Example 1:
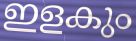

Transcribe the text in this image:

ഇളകും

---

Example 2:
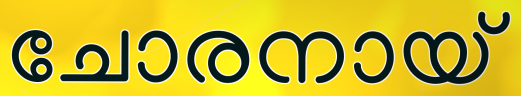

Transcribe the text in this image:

ചോരനായ്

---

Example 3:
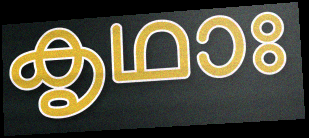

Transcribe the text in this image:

കൃഥാഃ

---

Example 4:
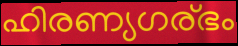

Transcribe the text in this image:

ഹിരണ്യഗര്ഭം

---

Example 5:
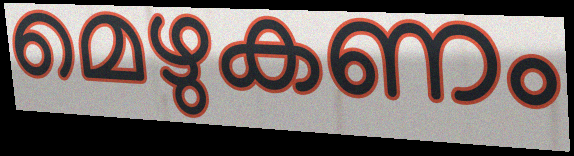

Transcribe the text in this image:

മെഴുകണം